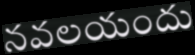
నవలయందు